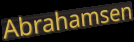
Abrahamsen